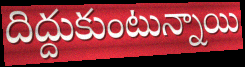
దిద్దుకుంటున్నాయి